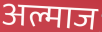
अल्माज